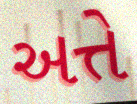
અત્તે